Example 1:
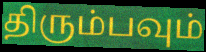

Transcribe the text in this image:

திரும்பவும்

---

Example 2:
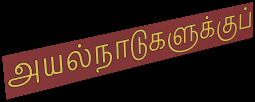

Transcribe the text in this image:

அயல்நாடுகளுக்குப்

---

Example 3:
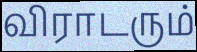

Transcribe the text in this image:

விராடரும்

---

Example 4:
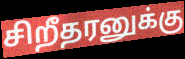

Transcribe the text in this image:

சிறீதரனுக்கு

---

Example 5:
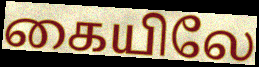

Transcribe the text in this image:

கையிலே